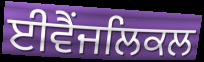
ਈਵੈਂਜਲਿਕਲ